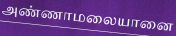
அண்ணாமலையானை